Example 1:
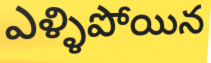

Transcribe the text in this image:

ఎళ్ళిపోయిన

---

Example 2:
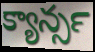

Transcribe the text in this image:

క్యాన్సర్‍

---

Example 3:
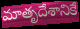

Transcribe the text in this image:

మాతృదేశానికే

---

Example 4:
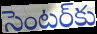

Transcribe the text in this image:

సెంటర్‌కు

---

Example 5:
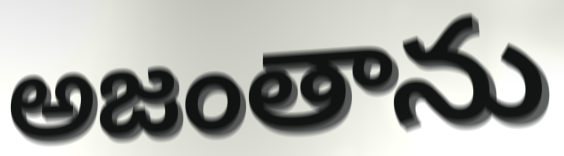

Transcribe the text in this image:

అజంతాను